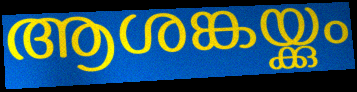
ആശങ്കയ്ക്കും